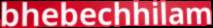
bhebechhilam